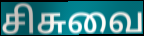
சிசுவை